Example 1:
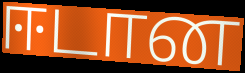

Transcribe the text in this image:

ஈடான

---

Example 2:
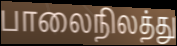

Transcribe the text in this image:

பாலைநிலத்து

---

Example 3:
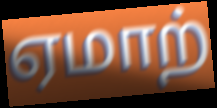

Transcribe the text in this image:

ஏமாற்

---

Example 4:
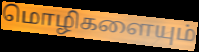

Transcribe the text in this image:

மொழிகளையும்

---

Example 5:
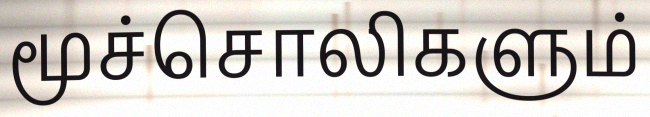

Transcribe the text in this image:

மூச்சொலிகளும்